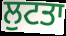
ਲੁਟਤਾ